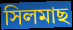
সিলমাছ